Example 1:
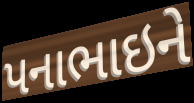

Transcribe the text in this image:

પનાભાઇને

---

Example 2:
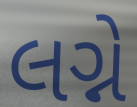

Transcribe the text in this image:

લગ્ને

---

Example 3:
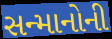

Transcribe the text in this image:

સન્માનોની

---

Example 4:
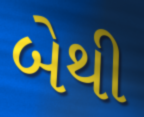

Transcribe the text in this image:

બેથી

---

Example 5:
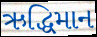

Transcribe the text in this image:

ઋદ્ધિમાન